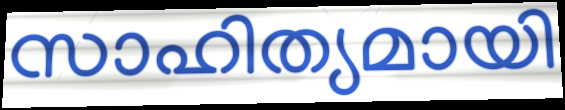
സാഹിത്യമായി